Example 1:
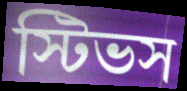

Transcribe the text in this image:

স্টিভস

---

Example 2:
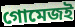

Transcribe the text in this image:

গোমেজই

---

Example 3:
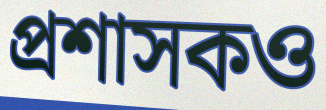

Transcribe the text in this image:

প্রশাসকও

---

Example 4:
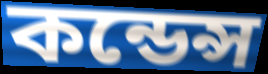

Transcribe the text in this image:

কন্ডেন্স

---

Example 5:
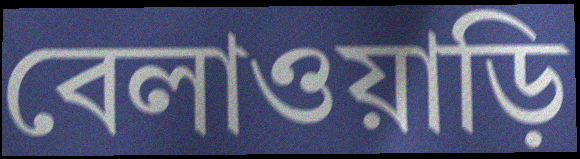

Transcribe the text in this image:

বেলাওয়াড়ি